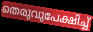
തെരുവുപേക്ഷിച്ച്